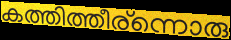
കത്തിത്തീര്ന്നൊരു